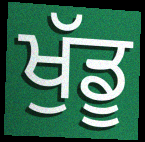
ਖੁੱਡੂ